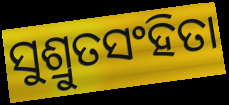
ସୁଶ୍ରୁତସଂହିତା